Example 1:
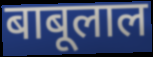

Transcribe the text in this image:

बाबूलाल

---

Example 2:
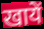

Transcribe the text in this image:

खायें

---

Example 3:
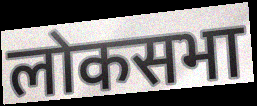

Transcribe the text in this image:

लोकसभा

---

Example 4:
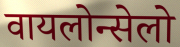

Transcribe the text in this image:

वायलोन्सेलो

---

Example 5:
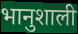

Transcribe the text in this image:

भानुशाली